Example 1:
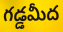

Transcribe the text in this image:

గడ్డమీద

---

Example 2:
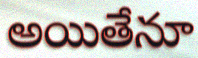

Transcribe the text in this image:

అయితేనూ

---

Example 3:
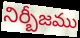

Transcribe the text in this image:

నిర్బీజము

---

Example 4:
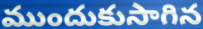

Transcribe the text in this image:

ముందుకుసాగిన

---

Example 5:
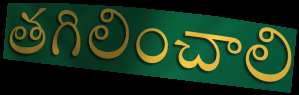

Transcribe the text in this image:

తగిలించాలి